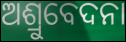
ଅଶ୍ରୁବେଦନା